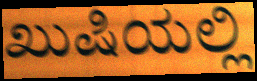
ಖುಷಿಯಲ್ಲಿ